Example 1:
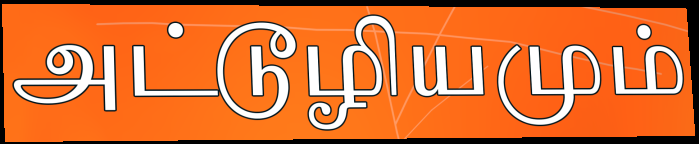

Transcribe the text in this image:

அட்டூழியமும்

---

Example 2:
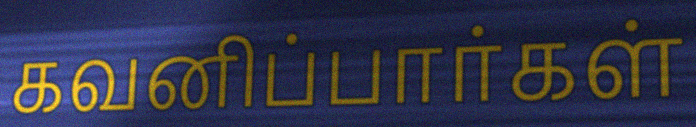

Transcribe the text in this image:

கவனிப்பார்கள்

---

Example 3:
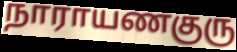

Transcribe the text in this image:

நாராயணகுரு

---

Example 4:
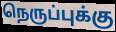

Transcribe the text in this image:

நெருப்புக்கு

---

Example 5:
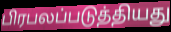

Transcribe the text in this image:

பிரபலப்படுத்தியது